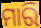
ମାରି